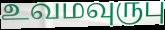
உவமவுருபு